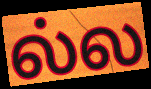
ல்ல